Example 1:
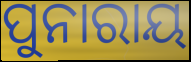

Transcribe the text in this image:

ପୁନାରାୟ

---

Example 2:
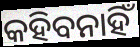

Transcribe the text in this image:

କହିବନାହିଁ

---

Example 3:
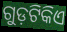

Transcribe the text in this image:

ଗୁଡ଼ଟିକିଏ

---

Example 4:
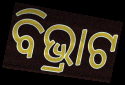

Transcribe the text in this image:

ବିଭ୍ରାଟ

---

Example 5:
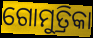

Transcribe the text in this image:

ଗୋମୁତ୍ରିକା